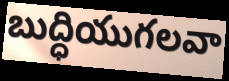
బుద్ధియుగలవా